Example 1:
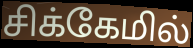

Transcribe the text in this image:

சிக்கேமில்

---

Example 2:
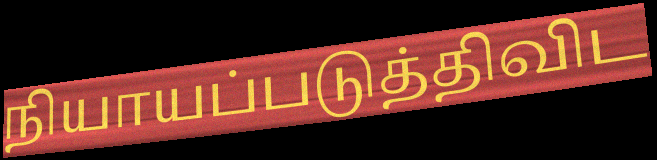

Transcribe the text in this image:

நியாயப்படுத்திவிட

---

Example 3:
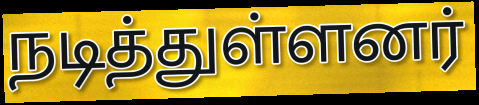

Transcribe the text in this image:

நடித்துள்ளனர்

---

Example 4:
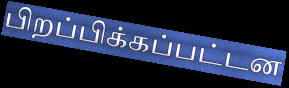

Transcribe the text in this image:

பிறப்பிக்கப்பட்டன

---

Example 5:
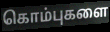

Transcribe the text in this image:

கொம்புகளை